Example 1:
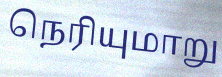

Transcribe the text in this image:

நெரியுமாறு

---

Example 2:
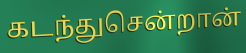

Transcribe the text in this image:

கடந்துசென்றான்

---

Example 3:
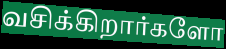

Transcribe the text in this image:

வசிக்கிறார்களோ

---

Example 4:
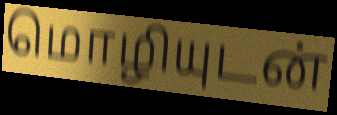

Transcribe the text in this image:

மொழியுடன்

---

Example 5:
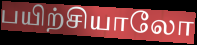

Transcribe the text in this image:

பயிற்சியாலோ